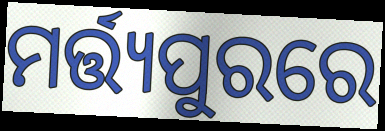
ମର୍ତ୍ତ୍ୟପୁରରେ